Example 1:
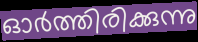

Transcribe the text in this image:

ഓർത്തിരിക്കുന്നു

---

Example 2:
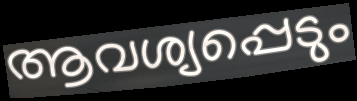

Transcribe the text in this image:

ആവശ്യപ്പെടും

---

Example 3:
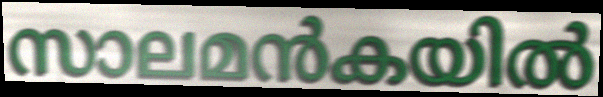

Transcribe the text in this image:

സാലമൻകയിൽ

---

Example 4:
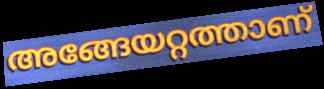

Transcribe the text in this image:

അങ്ങേയറ്റത്താണ്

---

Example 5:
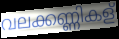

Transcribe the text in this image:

വലക്കണ്ണികള്